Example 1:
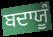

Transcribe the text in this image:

ਬਦਾਯੂੰ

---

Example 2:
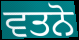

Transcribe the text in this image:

ਵਤਨੋ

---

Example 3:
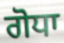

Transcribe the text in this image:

ਗੋਧਾ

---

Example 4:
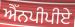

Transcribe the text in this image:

ਐੱਨਪੀਪੀਏ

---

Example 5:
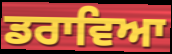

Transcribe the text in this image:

ਡਰਾਵਿਆ